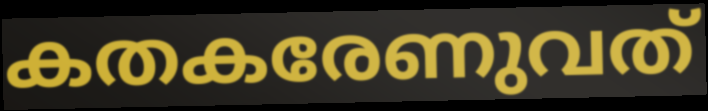
കതകരേണുവത്